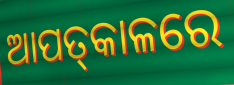
ଆପତ୍‌କାଳରେ